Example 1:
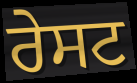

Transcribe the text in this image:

ਰੇਸਟ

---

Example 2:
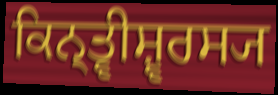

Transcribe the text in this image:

ਕਿਨ੍ਤ੍ਵੀਸ਼੍ਵਰਸ੍ਯ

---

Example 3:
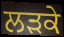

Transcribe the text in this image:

ਲਡ਼ਕੇ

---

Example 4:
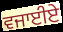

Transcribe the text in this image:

ਵਜਾਈਏ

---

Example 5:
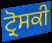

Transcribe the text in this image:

ਟ੍ਰੋਸਕੀ